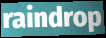
raindrop